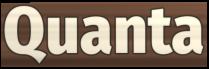
Quanta